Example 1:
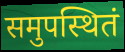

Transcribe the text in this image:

समुपस्थितं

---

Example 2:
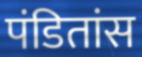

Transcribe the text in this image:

पंडितांस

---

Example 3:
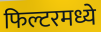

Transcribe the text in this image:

फिल्टरमध्ये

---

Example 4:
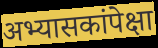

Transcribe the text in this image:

अभ्यासकांपेक्षा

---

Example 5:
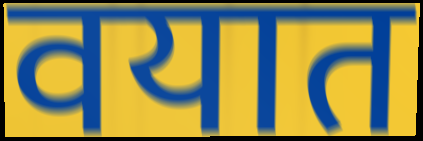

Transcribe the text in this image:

वयात